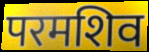
परमशिव